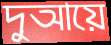
দুআয়ে